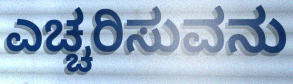
ಎಚ್ಚರಿಸುವನು